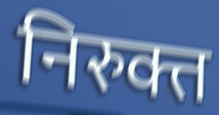
निरुक्त